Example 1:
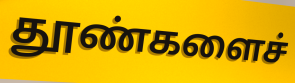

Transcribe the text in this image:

தூண்களைச்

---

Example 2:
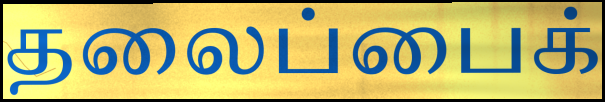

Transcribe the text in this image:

தலைப்பைக்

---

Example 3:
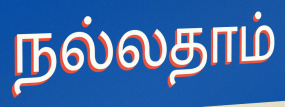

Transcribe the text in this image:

நல்லதாம்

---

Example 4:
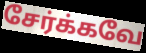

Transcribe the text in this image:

சேர்க்கவே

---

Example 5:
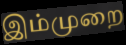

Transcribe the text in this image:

இம்முறை